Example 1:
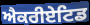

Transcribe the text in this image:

ਐਕਰੀਏਟਿਡ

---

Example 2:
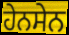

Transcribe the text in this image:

ਹੇਨਸੇਨ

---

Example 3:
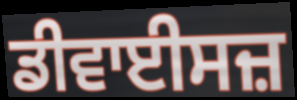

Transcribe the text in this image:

ਡੀਵਾਈਸਜ਼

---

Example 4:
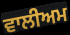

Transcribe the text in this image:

ਵਾਲੀਅਮ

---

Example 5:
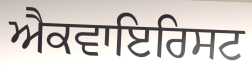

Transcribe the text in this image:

ਐਕਵਾਇਰਿਸਟ